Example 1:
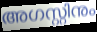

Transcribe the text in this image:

അഗസ്റ്റിനും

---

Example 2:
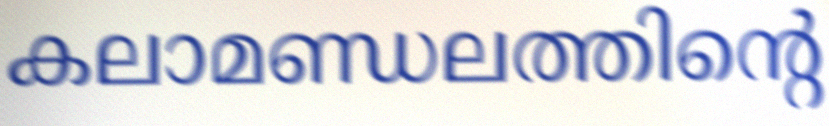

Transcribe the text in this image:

കലാമണ്ഡലത്തിന്റെ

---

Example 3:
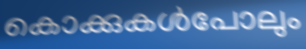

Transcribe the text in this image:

കൊക്കുകൾപോലും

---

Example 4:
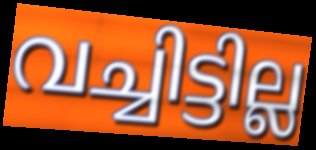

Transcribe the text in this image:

വച്ചിട്ടില്ല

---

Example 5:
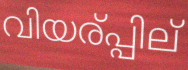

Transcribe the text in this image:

വിയര്പ്പില്